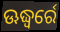
ଊଦ୍ଧ୍ୱର୍ରେ